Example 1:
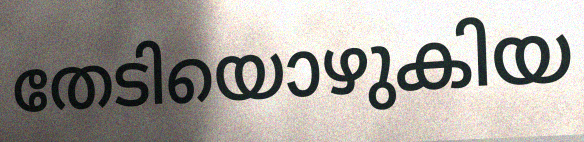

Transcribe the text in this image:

തേടിയൊഴുകിയ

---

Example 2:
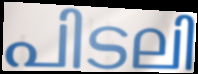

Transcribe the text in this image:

പിടലി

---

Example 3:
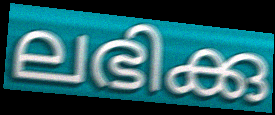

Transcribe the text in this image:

ലഭിക്കു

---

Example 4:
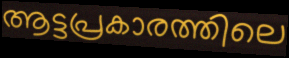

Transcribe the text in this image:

ആട്ടപ്രകാരത്തിലെ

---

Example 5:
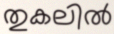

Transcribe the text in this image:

തുകലിൽ